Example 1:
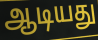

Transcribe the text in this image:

ஆடியது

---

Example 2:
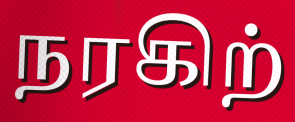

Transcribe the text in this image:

நரகிற்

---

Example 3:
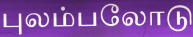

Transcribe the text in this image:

புலம்பலோடு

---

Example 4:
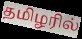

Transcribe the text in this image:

தமிழரில்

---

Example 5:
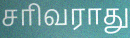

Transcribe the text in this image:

சரிவராது